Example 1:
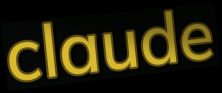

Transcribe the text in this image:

claude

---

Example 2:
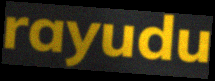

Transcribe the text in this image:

rayudu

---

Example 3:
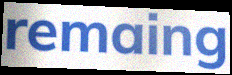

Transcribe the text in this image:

remaing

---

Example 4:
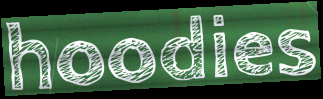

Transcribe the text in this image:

hoodies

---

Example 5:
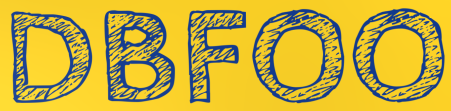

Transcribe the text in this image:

DBFOO